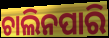
ଚାଲିନପାରି